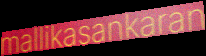
mallikasankaran